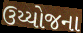
ઉય્યોજના